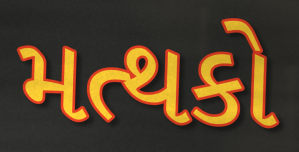
મત્થકો